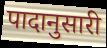
पादानुसारी